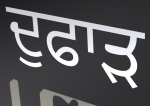
ਦੁਫਾੜ